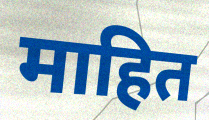
माहित